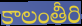
కాలంతీరి